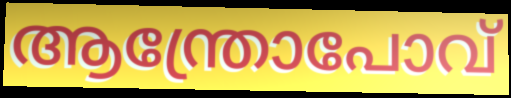
ആന്ത്രോപോവ്